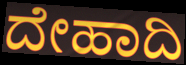
ದೇಹಾದಿ